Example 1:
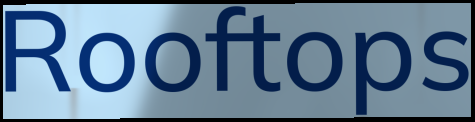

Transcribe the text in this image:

Rooftops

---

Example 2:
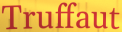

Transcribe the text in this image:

Truffaut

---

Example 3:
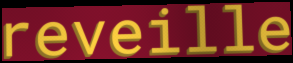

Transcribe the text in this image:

reveille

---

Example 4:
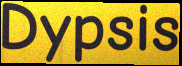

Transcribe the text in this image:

Dypsis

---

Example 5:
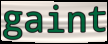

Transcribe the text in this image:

gaint